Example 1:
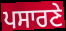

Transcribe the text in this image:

ਪਸਾਰਣੇ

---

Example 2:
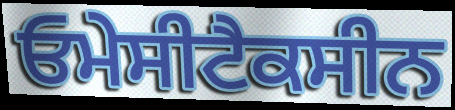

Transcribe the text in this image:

ਓਮੇਸੀਟੈਕਸੀਨ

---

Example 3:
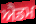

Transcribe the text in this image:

ਐਡਮ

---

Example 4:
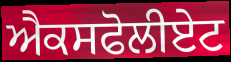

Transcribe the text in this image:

ਐਕਸਫੋਲੀਏਟ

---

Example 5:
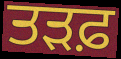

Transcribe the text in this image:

ਤੜਫ਼